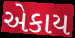
એકાય